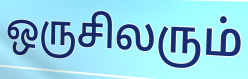
ஒருசிலரும்